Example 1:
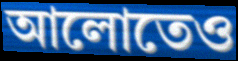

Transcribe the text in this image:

আলোতেও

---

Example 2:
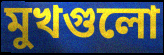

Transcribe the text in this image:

মুখগুলো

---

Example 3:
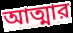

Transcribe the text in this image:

আত্মার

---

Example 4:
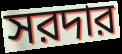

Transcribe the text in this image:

সরদার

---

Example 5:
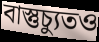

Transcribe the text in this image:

বাস্তুচ্যুতও